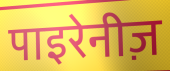
पाइरेनीज़